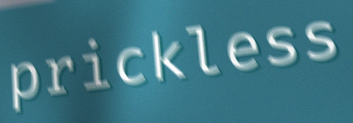
prickless